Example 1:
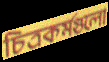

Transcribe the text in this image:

চিত্রকর্মগুলো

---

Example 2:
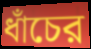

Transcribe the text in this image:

ধাঁচের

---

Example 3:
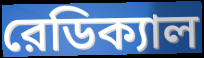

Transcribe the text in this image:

রেডিক্যাল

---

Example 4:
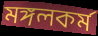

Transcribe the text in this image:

মঙ্গলকর্ম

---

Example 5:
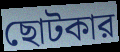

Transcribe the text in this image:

ছোটকার